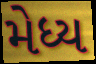
મેધ્ય